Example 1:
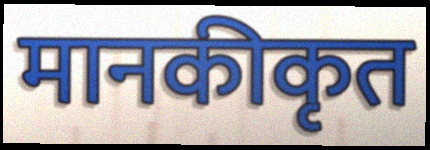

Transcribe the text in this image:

मानकीकृत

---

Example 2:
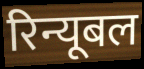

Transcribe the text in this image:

रिन्यूबल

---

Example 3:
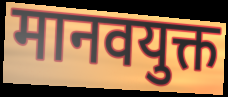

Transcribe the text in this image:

मानवयुक्त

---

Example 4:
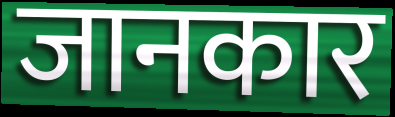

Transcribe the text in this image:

जानकार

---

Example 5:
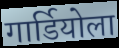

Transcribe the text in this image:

गार्डियोला